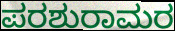
ಪರಶುರಾಮರ